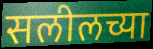
सलीलच्या